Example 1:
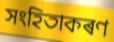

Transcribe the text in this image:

সংহিতাকৰণ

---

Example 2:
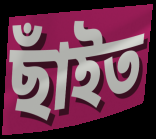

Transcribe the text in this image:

ছাঁইত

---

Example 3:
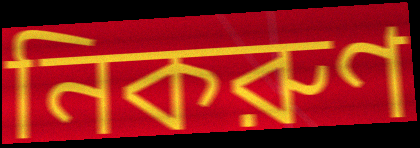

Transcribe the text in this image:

নিকৰুণ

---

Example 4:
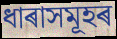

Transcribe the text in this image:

ধাৰাসমূহৰ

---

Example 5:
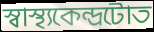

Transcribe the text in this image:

স্বাস্থ্যকেন্দ্ৰটোত